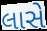
લાસે